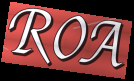
ROA